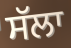
ਸੱਲਾ